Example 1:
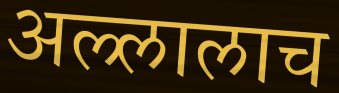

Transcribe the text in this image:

अल्लालाच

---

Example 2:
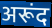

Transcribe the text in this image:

अरूंद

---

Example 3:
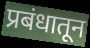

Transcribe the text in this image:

प्रबंधातून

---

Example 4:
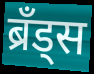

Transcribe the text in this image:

ब्रँड्स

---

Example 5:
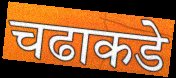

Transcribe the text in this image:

चढाकडे